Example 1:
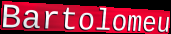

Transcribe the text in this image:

Bartolomeu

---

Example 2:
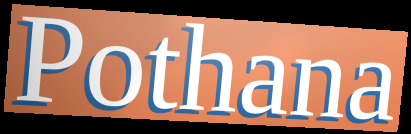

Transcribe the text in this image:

Pothana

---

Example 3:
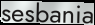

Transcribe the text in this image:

sesbania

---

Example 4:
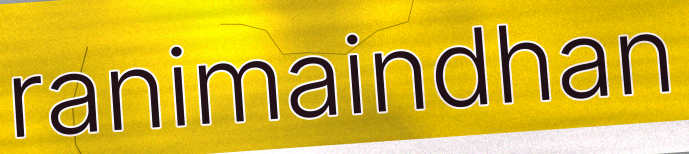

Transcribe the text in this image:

ranimaindhan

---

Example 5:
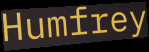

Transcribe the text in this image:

Humfrey